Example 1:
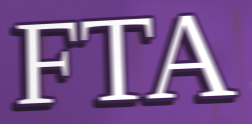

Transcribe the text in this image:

FTA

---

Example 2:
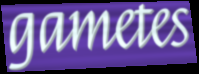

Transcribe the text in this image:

gametes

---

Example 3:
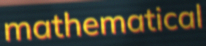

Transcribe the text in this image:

mathematical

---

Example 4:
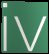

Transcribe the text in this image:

iv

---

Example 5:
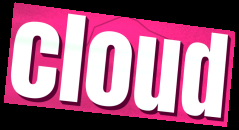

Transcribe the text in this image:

cloud